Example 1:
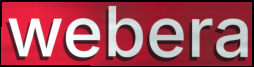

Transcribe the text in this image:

webera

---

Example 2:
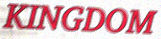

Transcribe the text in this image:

KINGDOM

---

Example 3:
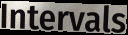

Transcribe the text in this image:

Intervals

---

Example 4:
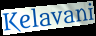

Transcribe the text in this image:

Kelavani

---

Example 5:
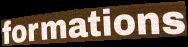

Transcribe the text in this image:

formations